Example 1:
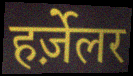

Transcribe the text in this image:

हर्ज़ेलर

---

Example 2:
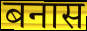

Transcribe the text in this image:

बनास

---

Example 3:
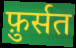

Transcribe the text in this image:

फ़ुर्सत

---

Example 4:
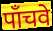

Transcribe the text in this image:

पाँचवे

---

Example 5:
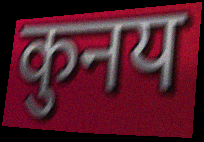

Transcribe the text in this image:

कुनय